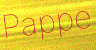
Pappe